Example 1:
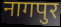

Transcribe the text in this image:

नागपुर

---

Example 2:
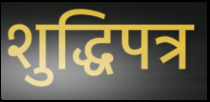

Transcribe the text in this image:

शुद्धिपत्र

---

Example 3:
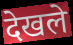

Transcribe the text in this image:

देखले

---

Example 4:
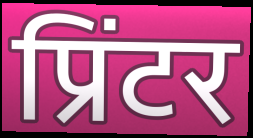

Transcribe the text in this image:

प्रिंटर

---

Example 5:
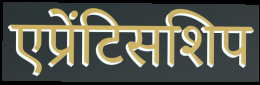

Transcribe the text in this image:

एप्रेंटिसशिप